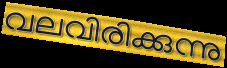
വലവിരിക്കുന്നു